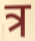
त्र